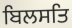
ਬਿਲਸਤਿ